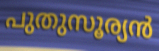
പുതുസൂര്യൻ